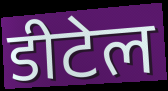
डीटेल